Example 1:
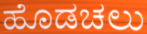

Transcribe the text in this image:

ಹೊಡಚಲು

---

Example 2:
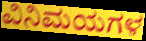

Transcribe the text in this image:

ವಿನಿಮಯಗಳ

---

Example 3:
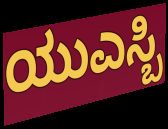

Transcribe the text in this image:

ಯುಎಸ್ಬಿ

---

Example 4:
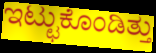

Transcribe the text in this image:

ಇಟ್ಟುಕೊಂಡಿತ್ತು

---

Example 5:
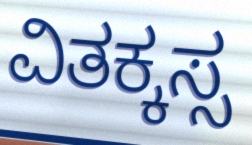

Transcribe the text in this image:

ವಿತಕ್ಕಸ್ಸ